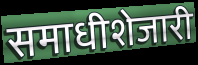
समाधीशेजारी